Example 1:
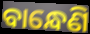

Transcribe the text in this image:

ବାନ୍ଧେଣି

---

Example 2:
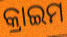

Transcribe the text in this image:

କ୍ରାଇମ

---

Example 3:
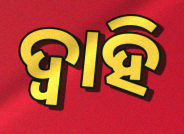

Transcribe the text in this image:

ଦ୍ୱାହି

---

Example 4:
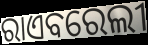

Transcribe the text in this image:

ରାଏବରେଲୀ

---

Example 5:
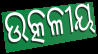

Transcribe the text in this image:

ଉତ୍କଳୀୟ